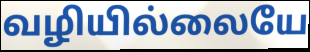
வழியில்லையே